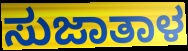
ಸುಜಾತಾಳ